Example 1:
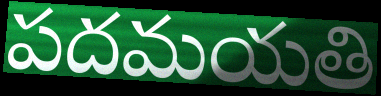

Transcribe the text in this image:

పదమయతి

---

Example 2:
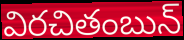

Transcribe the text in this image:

విరచితంబున్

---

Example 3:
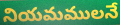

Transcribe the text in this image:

నియమములనే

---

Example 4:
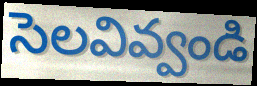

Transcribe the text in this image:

సెలవివ్వండి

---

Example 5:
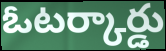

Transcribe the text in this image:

ఓటర్కార్డు